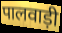
पालवाड़ी